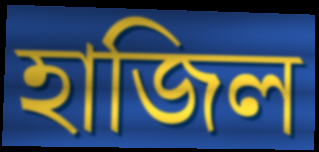
হাজিল